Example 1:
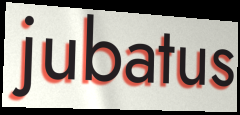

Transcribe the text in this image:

jubatus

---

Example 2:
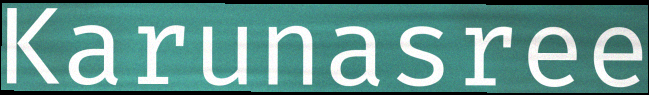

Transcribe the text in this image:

Karunasree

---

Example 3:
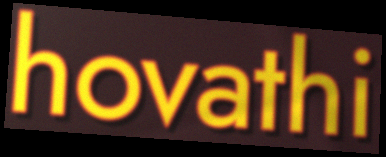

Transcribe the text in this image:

hovathi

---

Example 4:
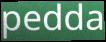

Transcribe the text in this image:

pedda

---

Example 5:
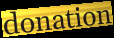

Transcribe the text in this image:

donation